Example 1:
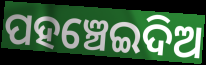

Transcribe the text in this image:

ପହଞ୍ଚେଇଦିଅ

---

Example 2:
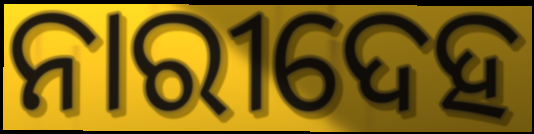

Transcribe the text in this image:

ନାରୀଦେହ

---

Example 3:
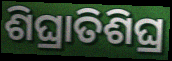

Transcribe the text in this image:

ଶିଘ୍ରାତିଶିଘ୍ର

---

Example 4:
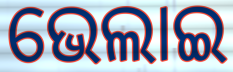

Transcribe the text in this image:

ଭେଲାଇ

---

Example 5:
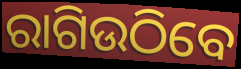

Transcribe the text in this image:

ରାଗିଉଠିବେ